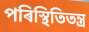
পৰিস্থিতিতন্ত্ৰ